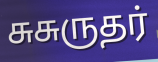
சுசுருதர்